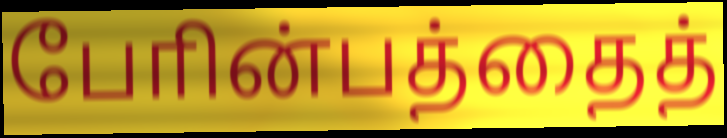
பேரின்பத்தைத்